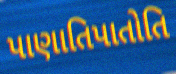
પાણાતિપાતોતિ